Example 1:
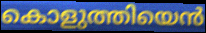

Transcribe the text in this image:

കൊളുത്തിയെൻ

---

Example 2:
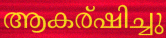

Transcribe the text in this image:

ആകര്ഷിച്ചു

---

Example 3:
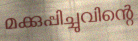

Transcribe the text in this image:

മക്കുപ്പിച്ചുവിന്റെ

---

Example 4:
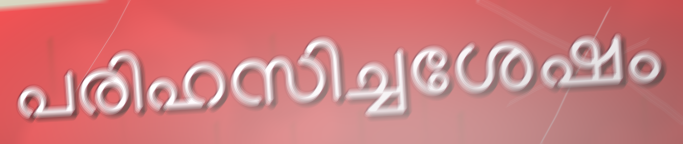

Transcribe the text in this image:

പരിഹസിച്ചശേഷം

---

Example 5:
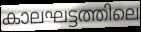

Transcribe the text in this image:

കാലഘട്ടത്തിലെ